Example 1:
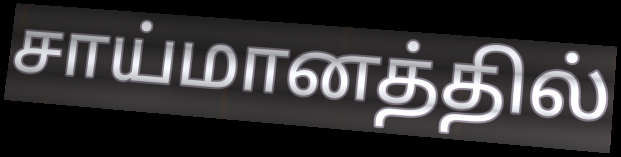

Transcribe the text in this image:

சாய்மானத்தில்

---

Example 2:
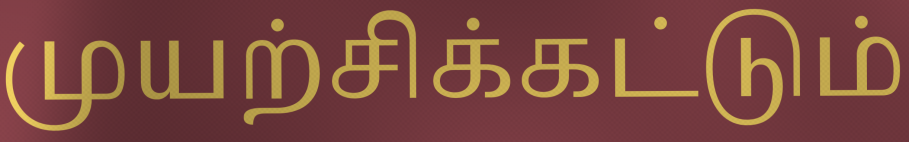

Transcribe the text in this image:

முயற்சிக்கட்டும்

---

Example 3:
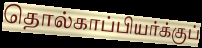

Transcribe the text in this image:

தொல்காப்பியர்க்குப்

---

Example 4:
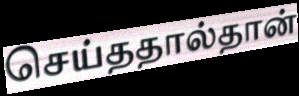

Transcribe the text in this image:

செய்ததால்தான்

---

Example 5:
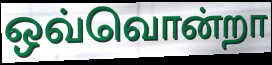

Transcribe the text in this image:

ஒவ்வொன்றா